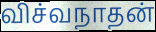
விச்வநாதன்